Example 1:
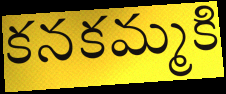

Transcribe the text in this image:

కనకమ్మకి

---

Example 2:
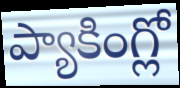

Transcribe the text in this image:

ప్యాకింగ్లో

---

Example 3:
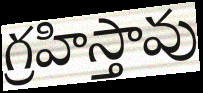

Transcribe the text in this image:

గ్రహిస్తావు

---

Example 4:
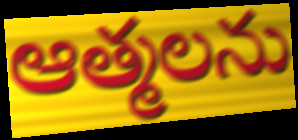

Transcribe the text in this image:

ఆత్మలను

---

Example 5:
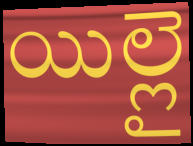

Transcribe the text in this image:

యిల్లై